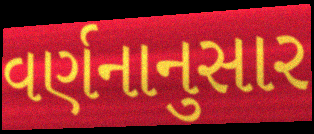
વર્ણનાનુસાર